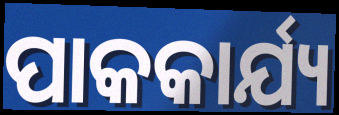
ପାକକାର୍ଯ୍ୟ